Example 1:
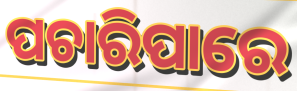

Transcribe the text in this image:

ପଚାରିପାରେ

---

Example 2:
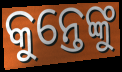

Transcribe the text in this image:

କୁନ୍ତେଙ୍କୁ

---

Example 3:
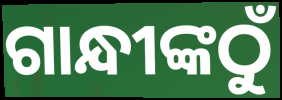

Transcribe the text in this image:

ଗାନ୍ଧୀଙ୍କଠୁଁ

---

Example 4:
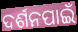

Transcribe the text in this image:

ଦର୍ଶନପାଇଁ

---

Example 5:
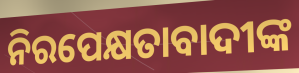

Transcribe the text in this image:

ନିରପେକ୍ଷତାବାଦୀଙ୍କ